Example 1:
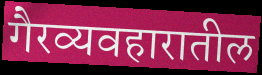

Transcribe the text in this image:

गैरव्यवहारातील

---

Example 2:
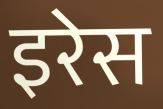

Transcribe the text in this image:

इरेस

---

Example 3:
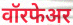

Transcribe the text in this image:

वॉरफेअर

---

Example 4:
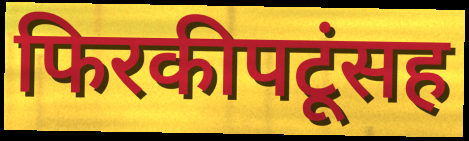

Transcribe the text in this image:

फिरकीपटूंसह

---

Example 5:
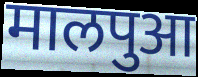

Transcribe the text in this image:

मालपुआ